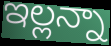
ఇల్లన్నా